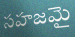
సహజమై